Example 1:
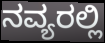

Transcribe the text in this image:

ನವ್ಯರಲ್ಲಿ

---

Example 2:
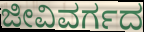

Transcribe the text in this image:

ಜೀವಿವರ್ಗದ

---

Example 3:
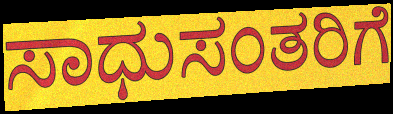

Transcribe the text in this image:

ಸಾಧುಸಂತರಿಗೆ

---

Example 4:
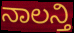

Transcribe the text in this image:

ನಾಲನ್ತಿ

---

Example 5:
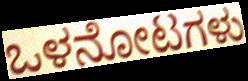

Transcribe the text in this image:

ಒಳನೋಟಗಳು